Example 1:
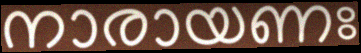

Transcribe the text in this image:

നാരായണഃ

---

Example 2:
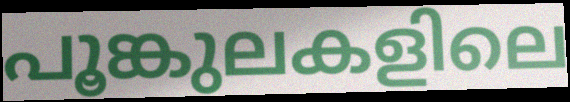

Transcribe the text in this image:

പൂങ്കുലകളിലെ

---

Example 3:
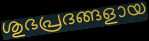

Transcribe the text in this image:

ശുഭപ്രദങ്ങളായ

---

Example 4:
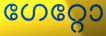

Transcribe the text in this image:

ഗേറ്റോ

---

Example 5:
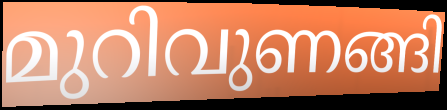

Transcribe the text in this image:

മുറിവുണങ്ങി